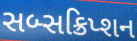
સબ્સક્રિપ્શન